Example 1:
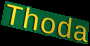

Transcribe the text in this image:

Thoda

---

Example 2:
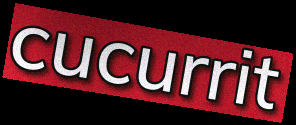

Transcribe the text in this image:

cucurrit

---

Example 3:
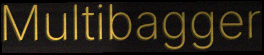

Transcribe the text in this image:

Multibagger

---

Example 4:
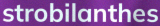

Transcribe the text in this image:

strobilanthes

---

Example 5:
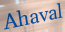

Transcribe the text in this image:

Ahaval